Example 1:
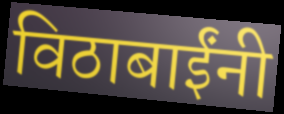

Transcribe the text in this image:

विठाबाईंनी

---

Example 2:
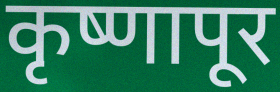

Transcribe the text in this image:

कृष्णापूर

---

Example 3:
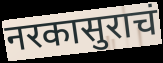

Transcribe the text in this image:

नरकासुराचं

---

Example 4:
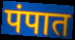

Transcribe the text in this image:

पंपात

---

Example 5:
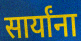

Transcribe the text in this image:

सार्यांना